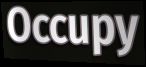
Occupy